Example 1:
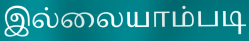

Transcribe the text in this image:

இல்லையாம்படி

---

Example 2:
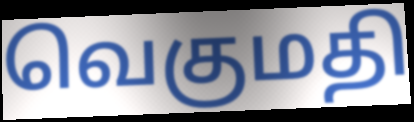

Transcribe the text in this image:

வெகுமதி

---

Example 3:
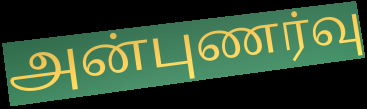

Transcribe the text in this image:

அன்புணர்வு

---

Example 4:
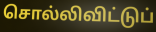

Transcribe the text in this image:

சொல்லிவிட்டுப்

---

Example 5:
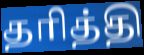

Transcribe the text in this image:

தரித்தி